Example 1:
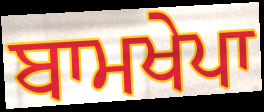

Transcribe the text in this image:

ਬਾਮਖੇਪਾ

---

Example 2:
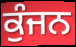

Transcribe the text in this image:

ਕੁੰਜਨ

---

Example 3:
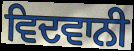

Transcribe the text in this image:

ਵਿਦਵਾਨੀ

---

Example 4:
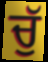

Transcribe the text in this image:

ਚੁੱ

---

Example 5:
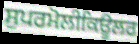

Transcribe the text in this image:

ਸੁਪਰਮੋਲੀਕਿਊਲਰ